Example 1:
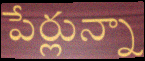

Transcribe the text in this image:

పేర్లున్నా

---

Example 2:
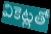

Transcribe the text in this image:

వికెట్లతో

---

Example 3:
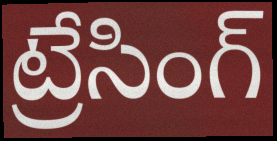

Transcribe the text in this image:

ట్రేసింగ్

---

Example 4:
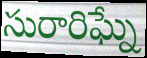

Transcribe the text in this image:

సురారిఘ్నే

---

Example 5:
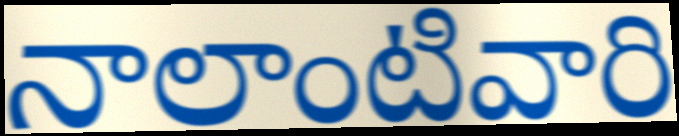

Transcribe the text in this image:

నాలాంటివారి